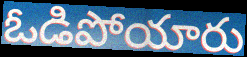
ఓడిపోయారు